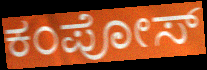
ಕಂಪೋಸ್